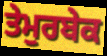
ਤੇਮੁਰਬੇਕ